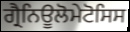
ਗ੍ਰੈਨਿਊਲੋਮੇਟੋਸਿਸ